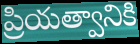
ప్రియత్వానికి